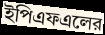
ইপিএফএলের